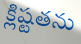
క్లిష్టతను